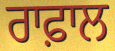
ਰਾਫ਼ਾਲ